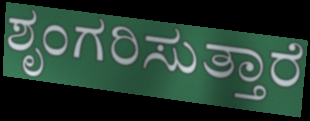
ಶೃಂಗರಿಸುತ್ತಾರೆ